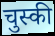
चुस्की